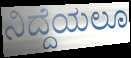
ನಿದ್ದೆಯಲೂ